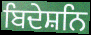
ਬਿਦੇਸ਼ਨਿ